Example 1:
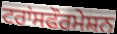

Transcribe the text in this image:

ਟਰਾਂਸਫੌਰਮੇਸ਼ਨ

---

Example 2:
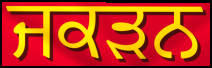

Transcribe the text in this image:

ਜਕੜਨ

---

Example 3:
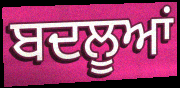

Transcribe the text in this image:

ਬਦਲੂਆਂ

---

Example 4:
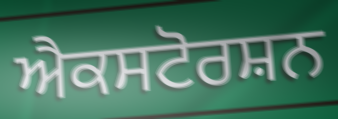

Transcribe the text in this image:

ਐਕਸਟੋਰਸ਼ਨ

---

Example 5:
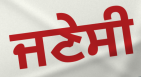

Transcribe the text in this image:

ਜਣੇਸੀ